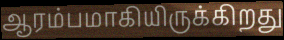
ஆரம்பமாகியிருக்கிறது